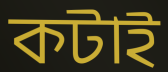
কটাই